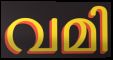
വമി